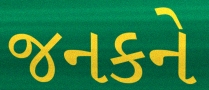
જનકને